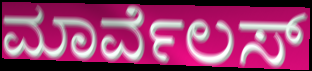
ಮಾರ್ವೆಲಸ್